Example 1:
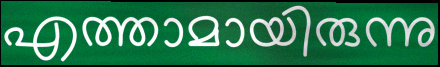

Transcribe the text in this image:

എത്താമായിരുന്നു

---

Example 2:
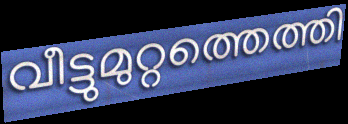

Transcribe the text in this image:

വീട്ടുമുറ്റത്തെത്തി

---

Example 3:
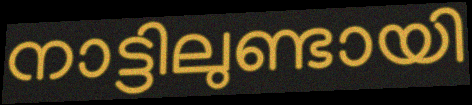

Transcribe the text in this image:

നാട്ടിലുണ്ടായി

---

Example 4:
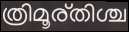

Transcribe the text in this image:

ത്രിമൂര്തിശ്ച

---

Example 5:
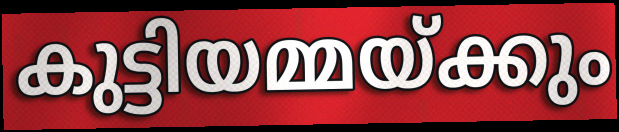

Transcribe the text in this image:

കുട്ടിയമ്മയ്ക്കും